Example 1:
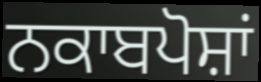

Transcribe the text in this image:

ਨਕਾਬਪੋਸ਼ਾਂ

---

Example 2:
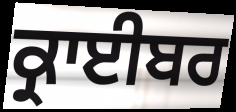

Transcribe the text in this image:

ਕ੍ਰਾਈਬਰ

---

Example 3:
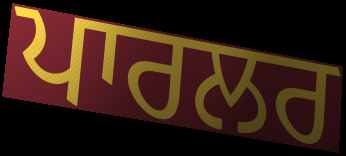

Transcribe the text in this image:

ਪਾਰਲਰ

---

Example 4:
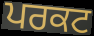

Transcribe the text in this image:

ਪਰਕਟ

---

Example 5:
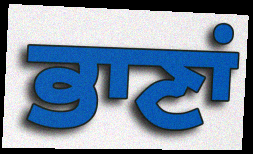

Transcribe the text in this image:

ਭਾਣਾਂ